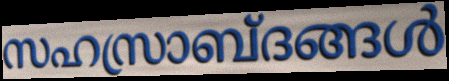
സഹസ്രാബ്ദങ്ങൾ